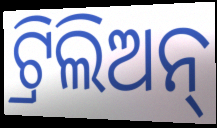
ଟ୍ରିଲିଅନ୍